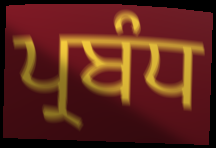
ਪ੍ਰਬੰਧ